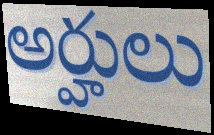
అర్హులు